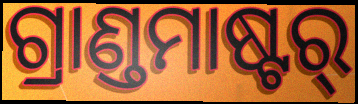
ଗ୍ରାଣ୍ଡମାଷ୍ଟର୍